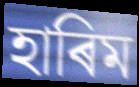
হাৰিম